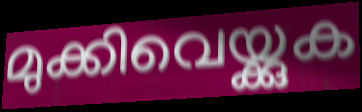
മുക്കിവെയ്ക്കുക